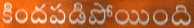
కిందపడిపోయింది